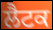
ਲੈਟਕ